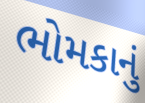
ભોમકાનું